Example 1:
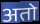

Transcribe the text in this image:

अतो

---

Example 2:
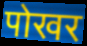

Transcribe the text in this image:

पोखर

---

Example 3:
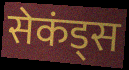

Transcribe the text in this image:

सेकंड्स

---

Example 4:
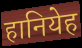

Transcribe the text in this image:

हानियेह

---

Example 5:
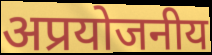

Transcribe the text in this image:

अप्रयोजनीय